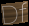
Df